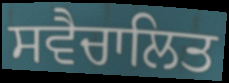
ਸਵੈਚਾਲਿਤ